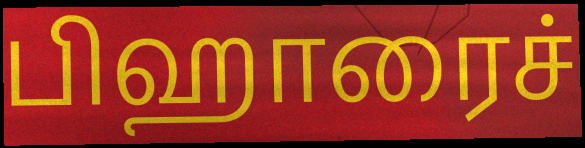
பிஹாரைச்